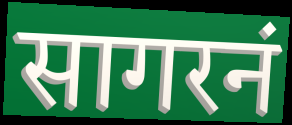
सागरनं